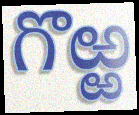
గొఱ్ఱ